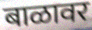
बाळावर